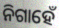
ନିଗାହେଁ